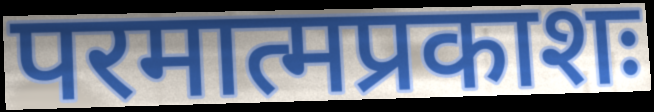
परमात्मप्रकाशः